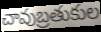
చావుబ్రతుకుల